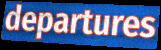
departures